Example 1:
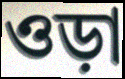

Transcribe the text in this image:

ওড়া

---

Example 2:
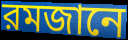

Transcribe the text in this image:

রমজানে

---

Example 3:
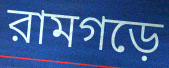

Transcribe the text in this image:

রামগড়ে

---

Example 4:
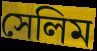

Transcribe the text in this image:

সেলিম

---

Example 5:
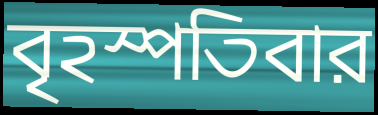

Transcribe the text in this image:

বৃহস্পতিবার